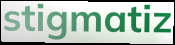
stigmatiz